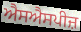
ਐਸਐਸਪੀਜ਼